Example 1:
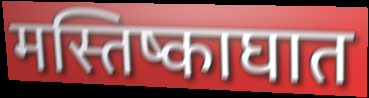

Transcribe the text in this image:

मस्तिष्काघात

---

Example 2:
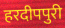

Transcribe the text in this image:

हरदीपपुरी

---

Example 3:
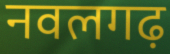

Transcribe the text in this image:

नवलगढ़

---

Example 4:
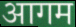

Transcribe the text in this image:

आगम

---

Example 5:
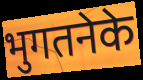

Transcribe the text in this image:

भुगतनेके